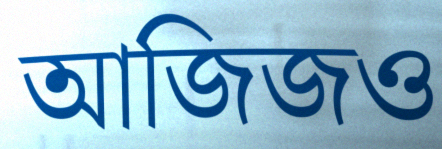
আজিজও